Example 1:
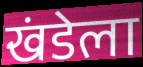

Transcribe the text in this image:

खंडेला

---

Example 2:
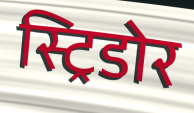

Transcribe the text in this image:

स्ट्रिडोर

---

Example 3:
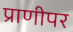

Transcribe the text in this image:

प्राणीपर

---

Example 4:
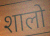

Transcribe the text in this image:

शालो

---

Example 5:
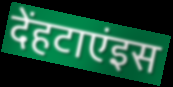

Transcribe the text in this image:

देंहटाएंइस